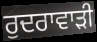
ਰੁਦਰਾਵਾੜੀ